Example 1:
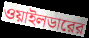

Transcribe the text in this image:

ওয়াইলডারের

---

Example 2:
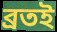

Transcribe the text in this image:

ব্রতই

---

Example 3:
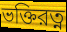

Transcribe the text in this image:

ভক্তিরত্ন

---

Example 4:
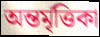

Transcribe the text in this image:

অন্তর্মৃত্তিকা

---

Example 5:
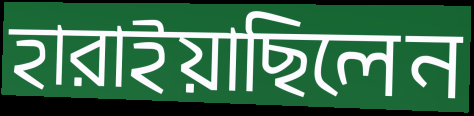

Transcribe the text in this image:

হারাইয়াছিলেন